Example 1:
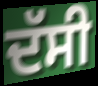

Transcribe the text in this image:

ਦੱਸੀ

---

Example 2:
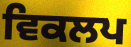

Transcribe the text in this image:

ਵਿਕਲਪ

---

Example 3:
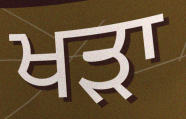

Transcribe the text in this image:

ਖੜਾ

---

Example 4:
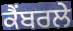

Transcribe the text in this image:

ਕੈਂਬਰਲੇ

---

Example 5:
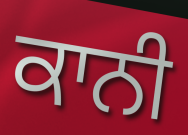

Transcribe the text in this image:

ਕਾਨੀ